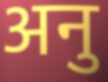
अनु